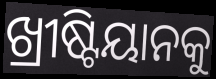
ଖ୍ରୀଷ୍ଟିୟାନକୁ